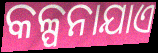
କଳ୍ପନାଯାଏ